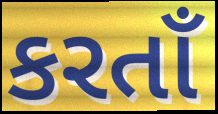
કરતાઁ